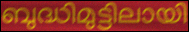
ബുദ്ധിമുട്ടിലായി